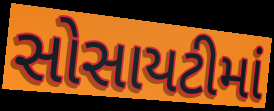
સોસાયટીમાં